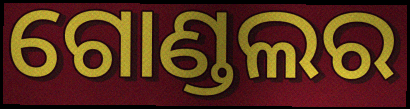
ଗୋଣ୍ଡଲର